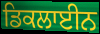
ਡਿਕਲਾਈਨ